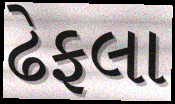
ઢેફલા